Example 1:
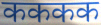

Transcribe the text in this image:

कककक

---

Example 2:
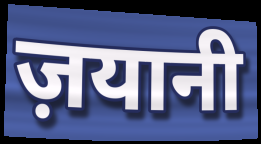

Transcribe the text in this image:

ज़यानी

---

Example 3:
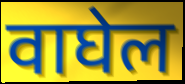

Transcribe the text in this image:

वाघेल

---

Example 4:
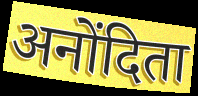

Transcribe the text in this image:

अनोंदिता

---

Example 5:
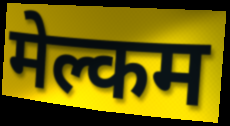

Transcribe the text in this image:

मेल्कम